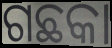
ଗଛକା